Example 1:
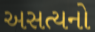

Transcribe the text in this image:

અસત્યનો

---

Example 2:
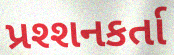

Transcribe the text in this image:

પ્રશ્શનકર્તા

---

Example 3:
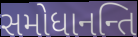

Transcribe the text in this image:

સમોધાનન્તિ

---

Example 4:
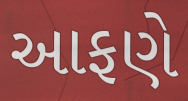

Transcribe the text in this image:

આફણે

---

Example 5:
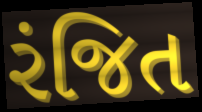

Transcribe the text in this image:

રંજિત